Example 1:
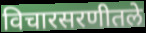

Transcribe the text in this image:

विचारसरणीतले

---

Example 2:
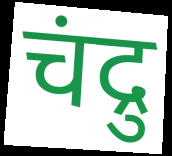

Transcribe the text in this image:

चंद्रु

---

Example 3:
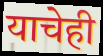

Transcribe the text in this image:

याचेही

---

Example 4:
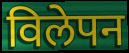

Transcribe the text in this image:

विलेपन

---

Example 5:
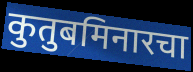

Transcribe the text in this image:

कुतुबमिनारचा